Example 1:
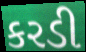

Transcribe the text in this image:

કરડી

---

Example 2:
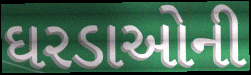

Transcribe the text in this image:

ઘરડાઓની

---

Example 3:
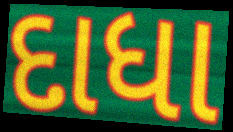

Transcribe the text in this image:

દાધા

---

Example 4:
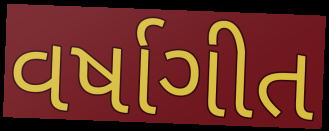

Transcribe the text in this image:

વર્ષાગીત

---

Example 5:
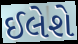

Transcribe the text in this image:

ઈલેશે